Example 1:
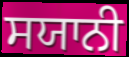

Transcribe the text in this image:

ਸਯਾਨੀ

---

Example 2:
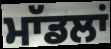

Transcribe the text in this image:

ਮਾੱਡਲਾਂ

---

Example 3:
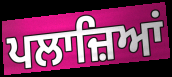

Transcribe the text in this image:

ਪਲਾਜ਼ਿਆਂ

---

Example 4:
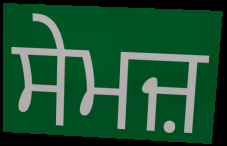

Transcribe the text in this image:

ਸੇਮਜ਼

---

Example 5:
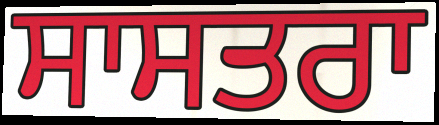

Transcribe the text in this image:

ਸਾਸਤਰਾ